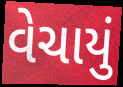
વેચાયું